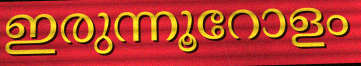
ഇരുന്നൂറോളം